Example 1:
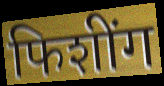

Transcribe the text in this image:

फिशींग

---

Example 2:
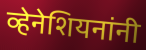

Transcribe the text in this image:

व्हेनेशियनांनी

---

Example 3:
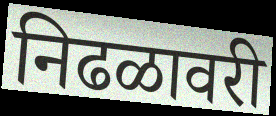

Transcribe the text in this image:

निढळावरी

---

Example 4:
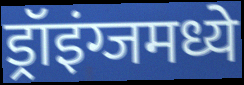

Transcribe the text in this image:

ड्रॉइंग्जमध्ये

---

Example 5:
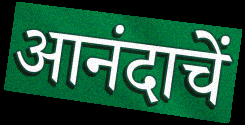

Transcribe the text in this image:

आनंदाचें